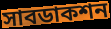
সাবডাকশন